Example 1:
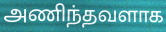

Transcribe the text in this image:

அணிந்தவளாக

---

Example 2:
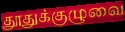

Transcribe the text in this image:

தூதுக்குழுவை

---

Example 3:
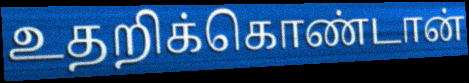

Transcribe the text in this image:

உதறிக்கொண்டான்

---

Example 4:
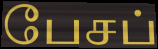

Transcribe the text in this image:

பேசப்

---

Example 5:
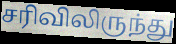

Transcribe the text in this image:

சரிவிலிருந்து